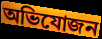
অভিযোজন